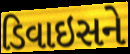
ડિવાઇસને